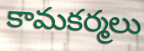
కామకర్మలు